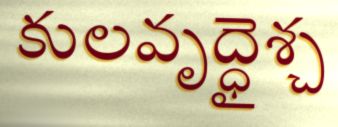
కులవృద్ధైశ్చ